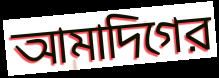
আমাদিগের